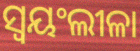
ସ୍ବୟଂଲୀଳା